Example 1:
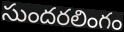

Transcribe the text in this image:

సుందరలింగం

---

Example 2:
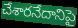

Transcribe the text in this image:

చేశారనేదానిపై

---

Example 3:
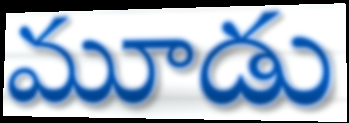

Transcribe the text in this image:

మూడు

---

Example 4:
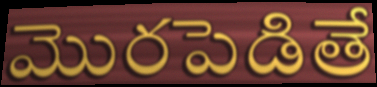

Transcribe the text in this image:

మొరపెడితే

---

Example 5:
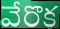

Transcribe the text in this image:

వేరొక